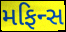
મફિન્સ